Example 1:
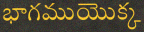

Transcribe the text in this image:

భాగముయొక్క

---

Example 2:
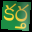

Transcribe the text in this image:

కర్త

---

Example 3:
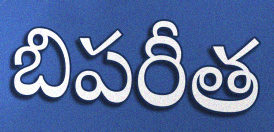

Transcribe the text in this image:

బిపరీత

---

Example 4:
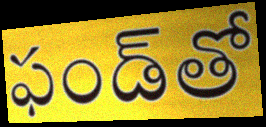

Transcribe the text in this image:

ఫండ్‌తో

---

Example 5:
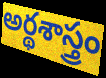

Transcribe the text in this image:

అర్థశాస్త్రం